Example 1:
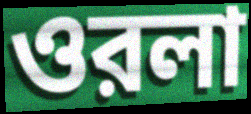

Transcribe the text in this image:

ওরলা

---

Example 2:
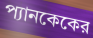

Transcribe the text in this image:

প্যানকেকের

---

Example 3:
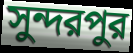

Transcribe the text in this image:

সুন্দরপুর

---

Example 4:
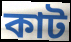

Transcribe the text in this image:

কাট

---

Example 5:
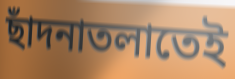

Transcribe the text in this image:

ছাঁদনাতলাতেই